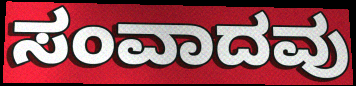
ಸಂವಾದವು